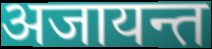
अजायन्त